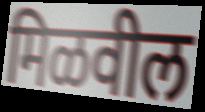
मिळवील